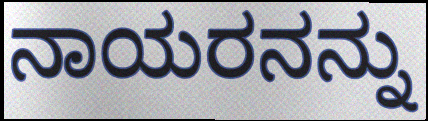
ನಾಯರನನ್ನು